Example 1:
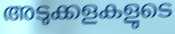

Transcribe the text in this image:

അടുക്കളകളുടെ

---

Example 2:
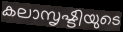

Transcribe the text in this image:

കലാസൃഷ്ടിയുടെ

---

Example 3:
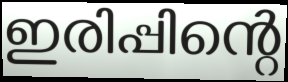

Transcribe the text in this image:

ഇരിപ്പിന്റെ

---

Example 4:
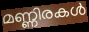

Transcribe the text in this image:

മണ്ണിരകൾ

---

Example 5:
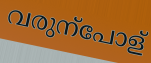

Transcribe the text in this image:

വരുന്പോള്